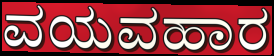
ವಯವಹಾರ